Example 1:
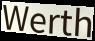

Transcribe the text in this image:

Werth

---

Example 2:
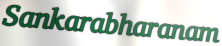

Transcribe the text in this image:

Sankarabharanam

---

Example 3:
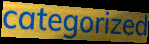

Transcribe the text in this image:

categorized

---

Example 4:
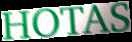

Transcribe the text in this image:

HOTAS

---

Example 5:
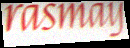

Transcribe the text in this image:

rasmay